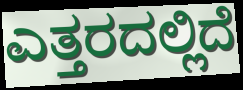
ಎತ್ತರದಲ್ಲಿದೆ